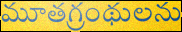
మూతగ్రంథులను